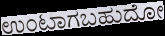
ಉಂಟಾಗಬಹುದೋ